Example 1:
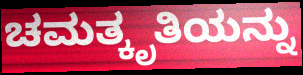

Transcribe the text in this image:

ಚಮತ್ಕೃತಿಯನ್ನು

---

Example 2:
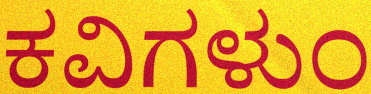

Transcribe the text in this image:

ಕವಿಗಳುಂ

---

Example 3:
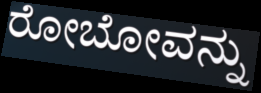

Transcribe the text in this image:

ರೋಬೋವನ್ನು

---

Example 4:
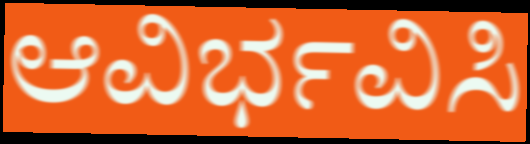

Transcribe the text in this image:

ಆವಿರ್ಭವಿಸಿ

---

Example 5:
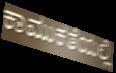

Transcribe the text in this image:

ಕಾಮುಕತೆಯಲ್ಲಿ